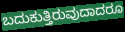
ಬದುಕುತ್ತಿರುವುದಾದರೂ